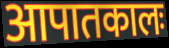
आपातकालः